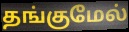
தங்குமேல்